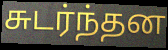
சுடர்ந்தன